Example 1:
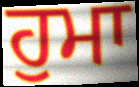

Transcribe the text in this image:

ਹੁਮਾ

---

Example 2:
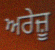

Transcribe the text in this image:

ਅਰੇਜ਼ੂ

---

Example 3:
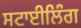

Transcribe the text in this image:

ਸਟਾਈਲਿੰਗ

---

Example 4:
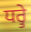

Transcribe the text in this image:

ਧਰ੍ਤੇ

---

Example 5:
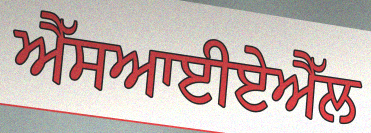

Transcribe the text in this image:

ਐੱਸਆਈਏਐੱਲ